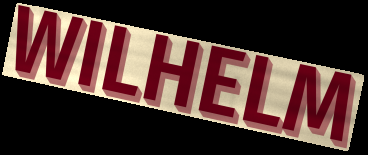
WILHELM